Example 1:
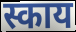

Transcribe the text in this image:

स्काय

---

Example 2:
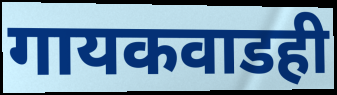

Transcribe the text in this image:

गायकवाडही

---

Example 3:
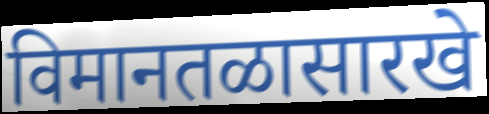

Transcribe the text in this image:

विमानतळासारखे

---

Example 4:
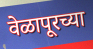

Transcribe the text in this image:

वेळापूरच्या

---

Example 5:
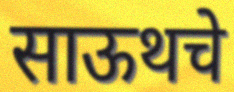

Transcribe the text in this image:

साऊथचे